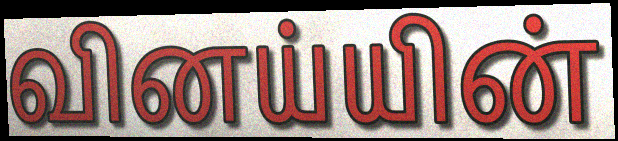
வினய்யின்